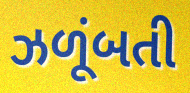
ઝળૂંબતી